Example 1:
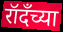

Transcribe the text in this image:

रॉदँच्या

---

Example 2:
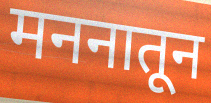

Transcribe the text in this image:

मननातून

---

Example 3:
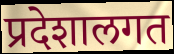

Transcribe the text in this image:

प्रदेशालगत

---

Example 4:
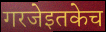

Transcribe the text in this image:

गरजेइतकेच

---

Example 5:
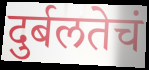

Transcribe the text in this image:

दुर्बलतेचं